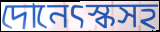
দোনেৎস্কসহ